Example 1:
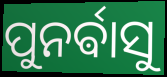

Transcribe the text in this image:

ପୁନର୍ଵାସୁ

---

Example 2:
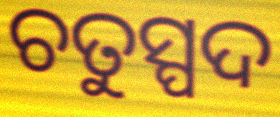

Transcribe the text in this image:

ଚତୁସ୍ପଦ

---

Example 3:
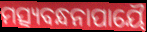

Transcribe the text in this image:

ମତ୍ସ୍ୟବନ୍ଧନାପାୟୈ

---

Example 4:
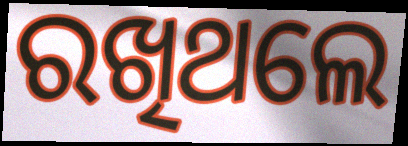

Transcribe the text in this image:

ରଖିଥଲେ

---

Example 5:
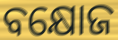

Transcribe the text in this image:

ବକ୍ଷୋଜ